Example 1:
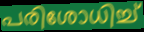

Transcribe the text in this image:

പരിശോധിച്ച്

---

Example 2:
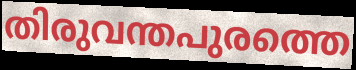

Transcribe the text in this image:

തിരുവന്തപുരത്തെ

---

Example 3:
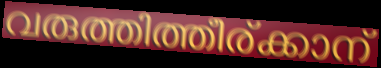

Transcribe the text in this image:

വരുത്തിത്തീര്ക്കാന്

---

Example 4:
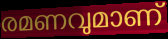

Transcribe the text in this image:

രമണവുമാണ്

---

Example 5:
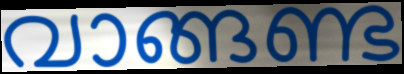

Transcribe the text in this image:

വാങ്ങണ്ട